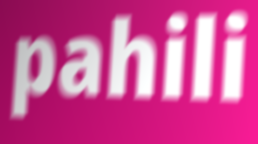
pahili